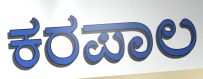
ಕರಪಾಲ